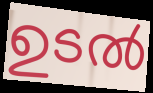
ഉടൽ